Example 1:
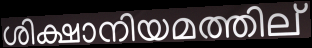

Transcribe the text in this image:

ശിക്ഷാനിയമത്തില്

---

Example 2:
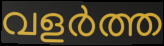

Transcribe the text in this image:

വളർത്ത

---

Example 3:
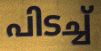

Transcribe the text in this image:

പിടച്ച്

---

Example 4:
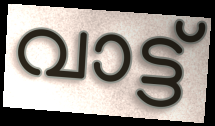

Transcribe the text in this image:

വാട്ട്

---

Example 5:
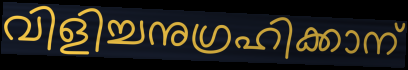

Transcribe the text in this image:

വിളിച്ചനുഗ്രഹിക്കാന്